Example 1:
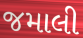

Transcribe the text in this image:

જમાલી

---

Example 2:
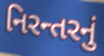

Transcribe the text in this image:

નિરન્તરનું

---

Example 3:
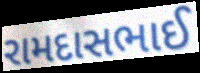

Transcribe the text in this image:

રામદાસભાઈ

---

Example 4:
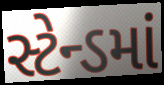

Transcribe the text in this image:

સ્ટેન્ડમાં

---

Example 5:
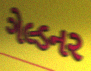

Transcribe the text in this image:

ગેલ્ડનર